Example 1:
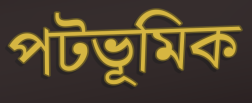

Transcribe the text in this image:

পটভূমিক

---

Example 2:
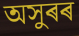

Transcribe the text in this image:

অসুৰৰ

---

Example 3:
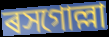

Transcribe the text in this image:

ৰসগোল্লা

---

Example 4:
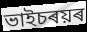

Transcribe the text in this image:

ভাইচৰয়ৰ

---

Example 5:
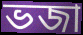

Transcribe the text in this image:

ভজা